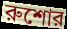
রুশোর